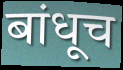
बांधूच